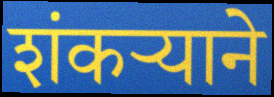
शंकर्‍याने